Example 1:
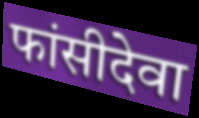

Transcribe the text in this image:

फांसीदेवा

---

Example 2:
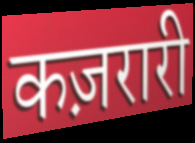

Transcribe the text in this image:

कज़रारी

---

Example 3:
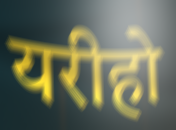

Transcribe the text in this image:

यरीहो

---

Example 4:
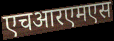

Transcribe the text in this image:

एचआरएमएस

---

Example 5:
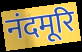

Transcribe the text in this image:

नंदमूरि